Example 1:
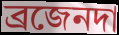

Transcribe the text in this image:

ব্রজেনদা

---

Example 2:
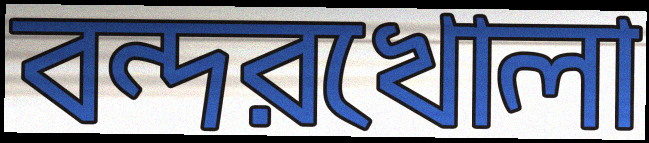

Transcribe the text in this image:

বন্দরখোলা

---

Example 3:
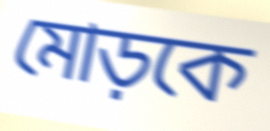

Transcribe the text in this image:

মোড়কে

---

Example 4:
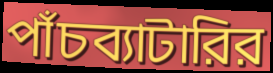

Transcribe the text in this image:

পাঁচব্যাটারির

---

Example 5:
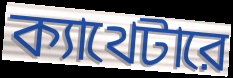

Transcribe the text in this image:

ক্যাথেটারে